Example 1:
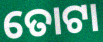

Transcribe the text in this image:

ତୋଟା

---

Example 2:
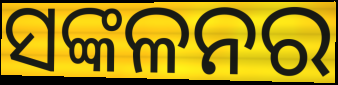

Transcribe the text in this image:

ସଙ୍କଳନର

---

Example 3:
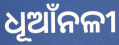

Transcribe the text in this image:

ଧୂଆଁନଳୀ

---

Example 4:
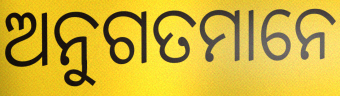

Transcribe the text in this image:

ଅନୁଗତମାନେ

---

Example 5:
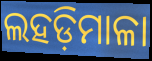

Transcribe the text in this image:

ଲହଡ଼ିମାଳା